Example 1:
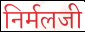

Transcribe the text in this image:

निर्मलजी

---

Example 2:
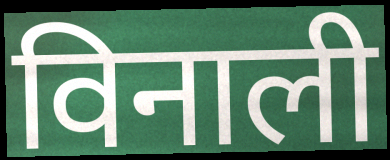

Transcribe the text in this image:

विनाली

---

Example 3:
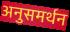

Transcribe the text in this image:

अनुसमर्थन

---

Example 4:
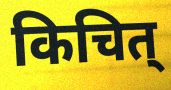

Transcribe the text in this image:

किचित्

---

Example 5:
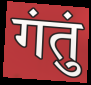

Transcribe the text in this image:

गंतुं